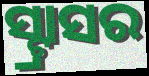
ସ୍ଟ୍ରାସର